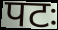
पटः